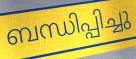
ബന്ധിപ്പിച്ചു